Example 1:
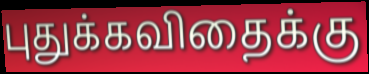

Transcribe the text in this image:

புதுக்கவிதைக்கு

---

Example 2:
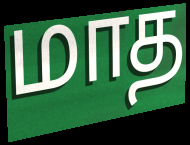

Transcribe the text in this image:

மாத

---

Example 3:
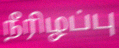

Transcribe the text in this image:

நீரிழப்பு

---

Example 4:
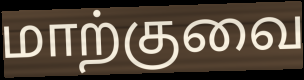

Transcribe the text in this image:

மாற்குவை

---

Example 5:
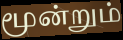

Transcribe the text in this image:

மூன்றும்